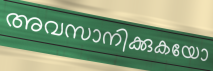
അവസാനിക്കുകയോ